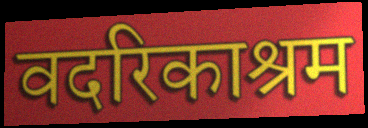
वदरिकाश्रम